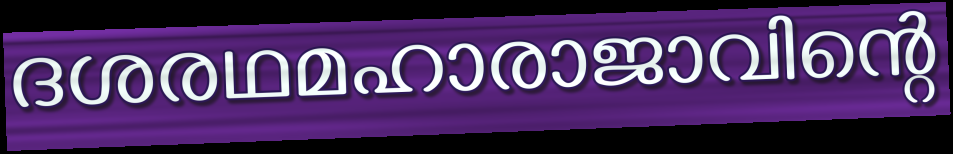
ദശരഥമഹാരാജാവിന്റെ